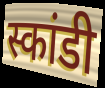
स्कांडी